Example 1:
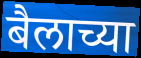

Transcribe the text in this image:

बैलाच्या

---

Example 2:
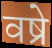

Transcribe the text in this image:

वष्रे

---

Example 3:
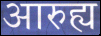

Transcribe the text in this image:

आरुह्य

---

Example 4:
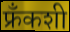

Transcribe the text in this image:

फ्रँकशी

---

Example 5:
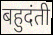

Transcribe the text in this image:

बहुदंती